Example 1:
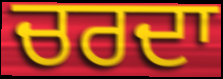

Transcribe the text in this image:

ਚਰਦਾ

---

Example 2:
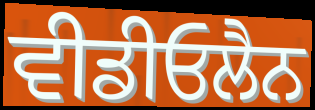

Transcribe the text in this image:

ਵੀਡੀਓਲੈਨ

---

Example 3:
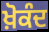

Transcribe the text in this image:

ਖ਼ੋਕੰਦ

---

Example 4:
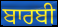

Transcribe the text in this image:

ਬਾਰਬੀ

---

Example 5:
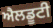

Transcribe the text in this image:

ਐਲਡੂਟੀ